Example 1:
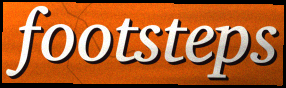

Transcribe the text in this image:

footsteps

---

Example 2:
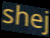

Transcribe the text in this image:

shej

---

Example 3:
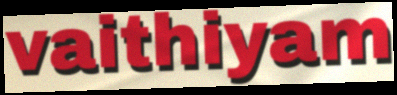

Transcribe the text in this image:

vaithiyam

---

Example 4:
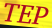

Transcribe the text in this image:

TEP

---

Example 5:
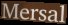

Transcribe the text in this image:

Mersal